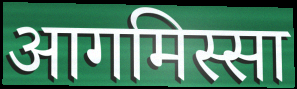
आगमिस्सा